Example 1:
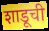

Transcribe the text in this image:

शाडूची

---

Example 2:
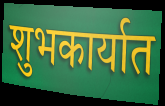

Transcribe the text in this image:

शुभकार्यात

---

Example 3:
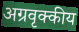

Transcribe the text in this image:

अग्रवृक्कीय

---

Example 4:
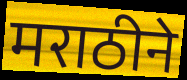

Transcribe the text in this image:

मराठीने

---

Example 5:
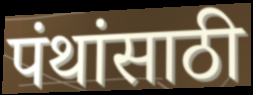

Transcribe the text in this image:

पंथांसाठी